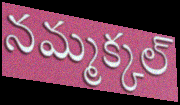
నమ్మక్కల్